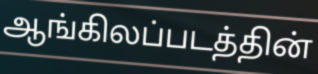
ஆங்கிலப்படத்தின்